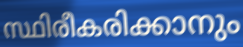
സ്ഥിരീകരിക്കാനും